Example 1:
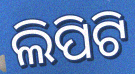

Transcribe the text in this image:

ଲିପିଟି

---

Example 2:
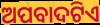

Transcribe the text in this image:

ଅପବାଦଟିଏ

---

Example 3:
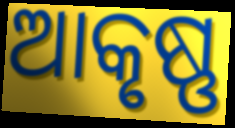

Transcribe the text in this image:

ଆକୃଷ୍ଣ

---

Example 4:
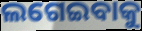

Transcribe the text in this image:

ଲଗେଇବାକୁ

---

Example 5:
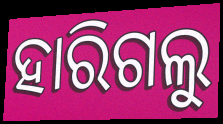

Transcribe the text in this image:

ହାରିଗଲୁ